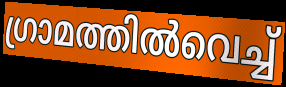
ഗ്രാമത്തിൽവെച്ച്